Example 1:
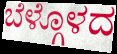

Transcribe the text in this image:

ಬೆಳ್ಗೊಳದ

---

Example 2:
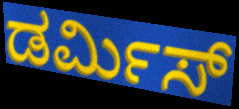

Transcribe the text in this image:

ಡರ್ಮಿಸ್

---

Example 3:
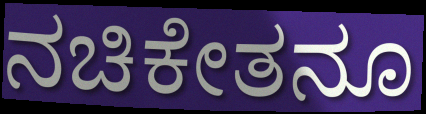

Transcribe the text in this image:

ನಚಿಕೇತನೂ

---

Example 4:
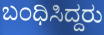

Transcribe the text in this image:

ಬಂಧಿಸಿದ್ದರು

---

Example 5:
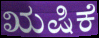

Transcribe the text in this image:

ಋಷಿಕೆ